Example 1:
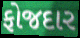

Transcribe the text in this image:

ફોજદાર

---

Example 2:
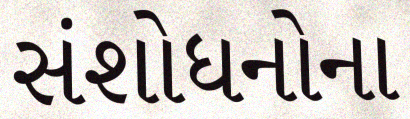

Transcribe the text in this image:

સંશોધનોના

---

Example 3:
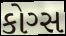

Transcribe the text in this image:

કોગ્સ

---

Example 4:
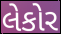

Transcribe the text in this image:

લેકોર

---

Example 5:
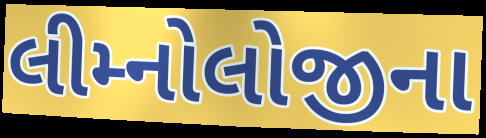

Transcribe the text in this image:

લીમ્નોલોજીના